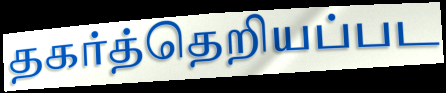
தகர்த்தெறியப்பட